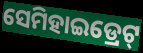
ସେମିହାଇଡ୍ରେଟ୍